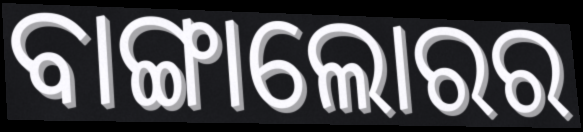
ବାଙ୍ଗାଲୋରର